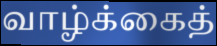
வாழ்க்கைத்